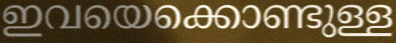
ഇവയെക്കൊണ്ടുള്ള